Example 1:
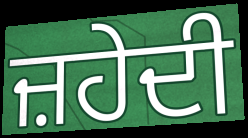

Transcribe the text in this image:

ਜ਼ਹੇਦੀ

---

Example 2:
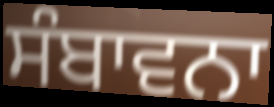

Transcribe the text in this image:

ਸੰਬਾਵਨਾ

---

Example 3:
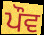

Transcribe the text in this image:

ਪੌਵ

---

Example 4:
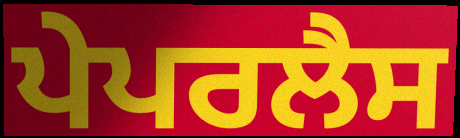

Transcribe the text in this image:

ਪੇਪਰਲੈਸ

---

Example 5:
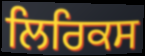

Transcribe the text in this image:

ਲਿਰਿਕਸ